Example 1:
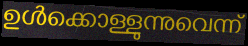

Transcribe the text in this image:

ഉൾക്കൊള്ളുന്നുവെന്ന്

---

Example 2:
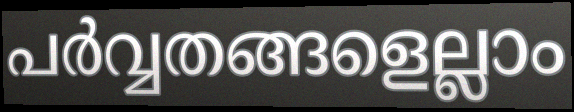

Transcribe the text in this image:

പർവ്വതങ്ങളെല്ലാം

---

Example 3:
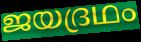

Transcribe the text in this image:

ജയദ്രഥം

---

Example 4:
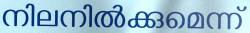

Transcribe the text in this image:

നിലനിൽക്കുമെന്ന്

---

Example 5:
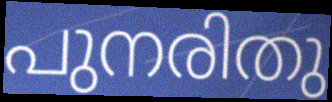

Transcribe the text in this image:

പുനരിതു